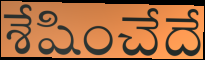
శేషించేదే